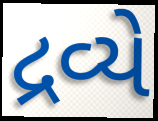
દ્રવ્યે